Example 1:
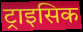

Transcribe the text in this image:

ट्राइसिक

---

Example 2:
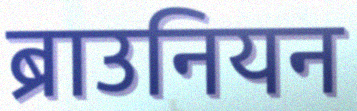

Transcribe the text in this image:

ब्राउनियन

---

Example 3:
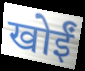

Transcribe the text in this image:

खोईं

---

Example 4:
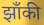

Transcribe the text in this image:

झाँकी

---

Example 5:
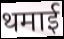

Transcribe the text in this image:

थमाई